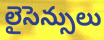
లైసెన్సులు